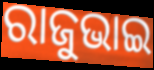
ରାଜୁଭାଇ